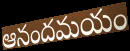
ఆనందమయం